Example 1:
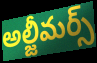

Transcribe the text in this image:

అల్జీమర్స్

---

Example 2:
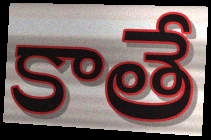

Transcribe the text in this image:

కాతే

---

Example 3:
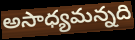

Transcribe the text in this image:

అసాధ్యమన్నది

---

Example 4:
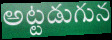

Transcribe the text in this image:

అట్టడుగున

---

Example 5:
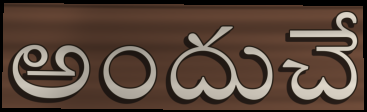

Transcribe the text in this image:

అందుచే